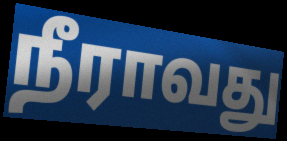
நீராவது